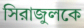
সিরাজুলকে